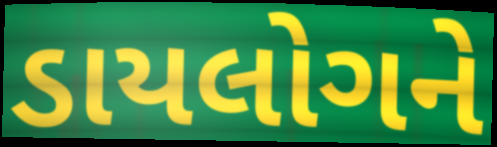
ડાયલોગને